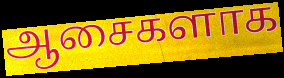
ஆசைகளாக